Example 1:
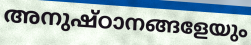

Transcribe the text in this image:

അനുഷ്ഠാനങ്ങളേയും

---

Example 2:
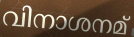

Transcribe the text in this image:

വിനാശനമ്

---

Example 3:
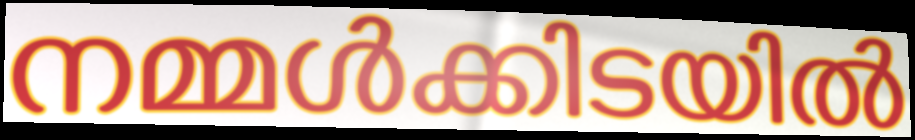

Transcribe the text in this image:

നമ്മൾക്കിടയിൽ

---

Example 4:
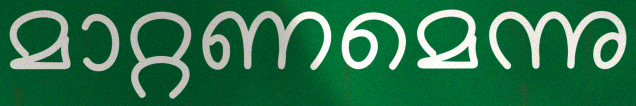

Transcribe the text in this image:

മാറ്റണമെന്നു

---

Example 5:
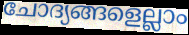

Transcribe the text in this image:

ചോദ്യങ്ങളെല്ലാം